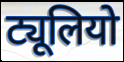
ट्यूलियो